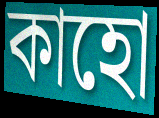
কাহো